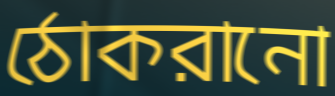
ঠোকরানো